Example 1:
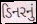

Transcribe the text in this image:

ડિનરનું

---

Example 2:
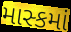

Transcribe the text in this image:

માસ્કમાં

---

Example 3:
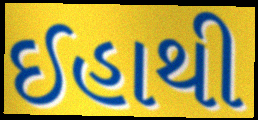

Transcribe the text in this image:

ઈહાથી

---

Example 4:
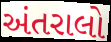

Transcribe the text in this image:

અંતરાલો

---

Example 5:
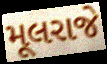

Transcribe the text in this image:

મૂલરાજે